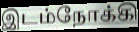
இடம்நோக்கி